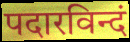
पदारविन्दं